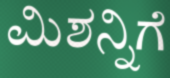
ಮಿಶನ್ನಿಗೆ